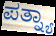
ಪತ್ನ್ಯಾ